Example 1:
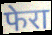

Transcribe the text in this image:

फेरा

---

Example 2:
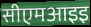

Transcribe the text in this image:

सीएमआइइ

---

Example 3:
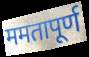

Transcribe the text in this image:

ममतापूर्ण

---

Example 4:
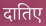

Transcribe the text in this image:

दातिए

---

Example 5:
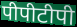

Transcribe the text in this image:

पीपीटीपी